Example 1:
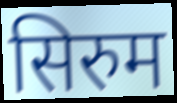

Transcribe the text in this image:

सिरुम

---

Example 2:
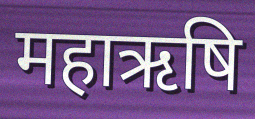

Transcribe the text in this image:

महाऋषि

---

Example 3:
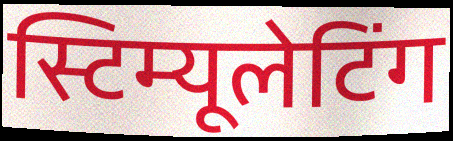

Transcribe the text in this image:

स्टिम्यूलेटिंग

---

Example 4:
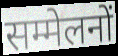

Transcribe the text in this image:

सम्मेलनों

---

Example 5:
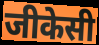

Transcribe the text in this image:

जीकेसी